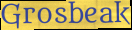
Grosbeak